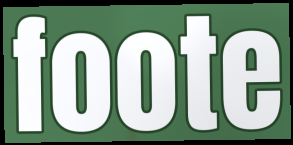
foote